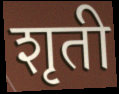
शृती